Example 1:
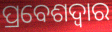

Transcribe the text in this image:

ପ୍ରବେଶଦ୍ଵାର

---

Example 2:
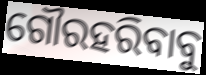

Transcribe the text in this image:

ଗୌରହରିବାବୁ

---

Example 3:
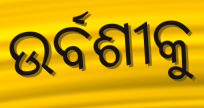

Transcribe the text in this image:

ଉର୍ବଶୀକୁ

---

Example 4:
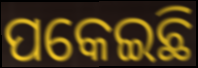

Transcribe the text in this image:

ପକେଇଛି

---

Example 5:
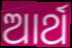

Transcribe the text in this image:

ଆର୍ଥ